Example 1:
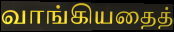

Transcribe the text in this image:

வாங்கியதைத்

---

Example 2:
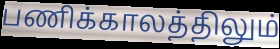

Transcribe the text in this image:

பணிக்காலத்திலும்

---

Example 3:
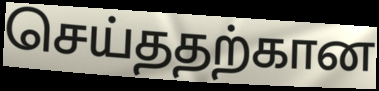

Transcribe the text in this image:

செய்ததற்கான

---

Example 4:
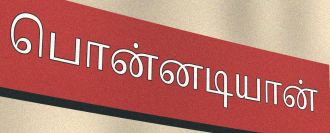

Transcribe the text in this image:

பொன்னடியான்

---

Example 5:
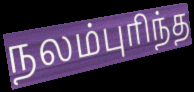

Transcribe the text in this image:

நலம்புரிந்த